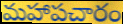
మహాపచారం